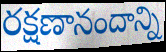
రక్షణానందాన్ని